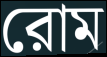
রোম